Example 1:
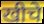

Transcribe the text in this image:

खीचे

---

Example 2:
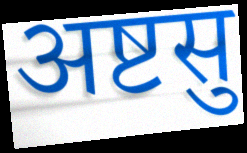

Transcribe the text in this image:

अष्टसु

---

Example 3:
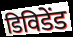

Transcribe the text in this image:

डिविडेंड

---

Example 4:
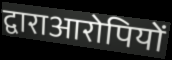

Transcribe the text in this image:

द्वाराआरोपियों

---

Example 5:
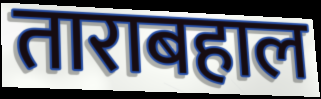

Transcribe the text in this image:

ताराबहाल